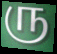
ரு